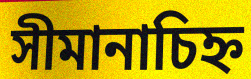
সীমানাচিহ্ন